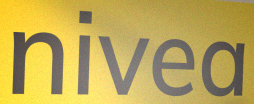
nivea